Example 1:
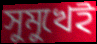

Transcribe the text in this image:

সুমুখেই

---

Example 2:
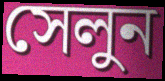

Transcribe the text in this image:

সেলুন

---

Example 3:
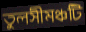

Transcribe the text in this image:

তুলসীমঞ্চটি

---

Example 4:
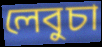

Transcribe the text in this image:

লেবুচা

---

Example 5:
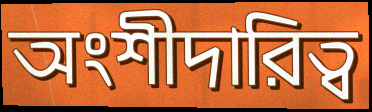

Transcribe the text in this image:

অংশীদারিত্ব